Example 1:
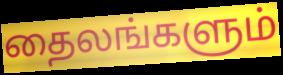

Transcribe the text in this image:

தைலங்களும்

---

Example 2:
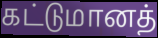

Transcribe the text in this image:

கட்டுமானத்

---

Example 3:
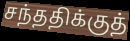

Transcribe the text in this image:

சந்ததிக்குத்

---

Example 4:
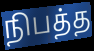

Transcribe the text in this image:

நிபத்த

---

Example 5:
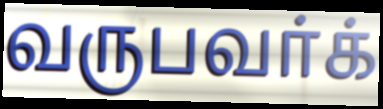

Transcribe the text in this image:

வருபவர்க்